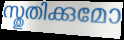
സ്തുതിക്കുമോ